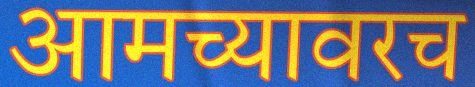
आमच्यावरच